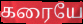
கரையே